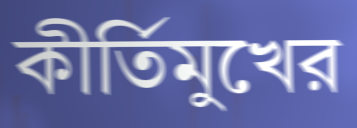
কীর্তিমুখের